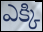
ఎక్కి